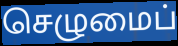
செழுமைப்